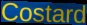
Costard